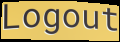
Logout